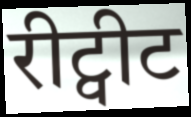
रीट्वीट